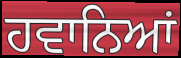
ਹਵਾਨਿਆਂ